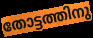
തോട്ടത്തിനു